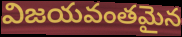
విజయవంతమైన